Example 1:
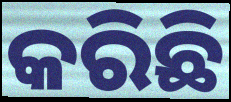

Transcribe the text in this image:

କରିଛି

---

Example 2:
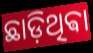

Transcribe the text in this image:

ଛାଡ଼ିଥିଵା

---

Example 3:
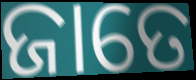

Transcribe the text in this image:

ଜାତେ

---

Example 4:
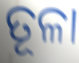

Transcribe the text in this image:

ତୂଳା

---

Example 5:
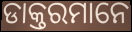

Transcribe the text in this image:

ଡାକ୍ତରମାନେ